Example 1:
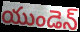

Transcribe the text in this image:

యుండెన్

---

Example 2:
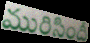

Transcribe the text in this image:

మురిసిందీ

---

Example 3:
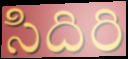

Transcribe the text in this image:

సిదిరి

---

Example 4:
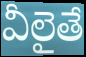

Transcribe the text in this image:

వీలైతే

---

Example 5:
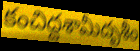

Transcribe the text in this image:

కంచిద్దశామీదృశీం